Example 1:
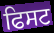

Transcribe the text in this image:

ਫਿਸਟ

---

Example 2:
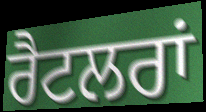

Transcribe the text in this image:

ਰੈਟਲਰਾਂ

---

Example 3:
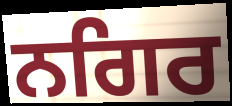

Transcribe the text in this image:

ਨਗਿਰ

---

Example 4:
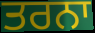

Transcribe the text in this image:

ਤਰਨਾ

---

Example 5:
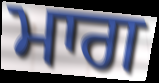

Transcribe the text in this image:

ਮਾਗ